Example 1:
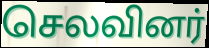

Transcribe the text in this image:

செலவினர்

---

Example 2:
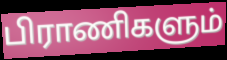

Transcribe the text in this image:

பிராணிகளும்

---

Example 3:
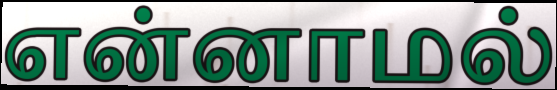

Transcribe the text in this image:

என்னாமல்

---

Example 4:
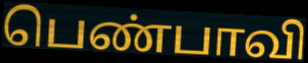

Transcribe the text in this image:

பெண்பாவி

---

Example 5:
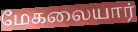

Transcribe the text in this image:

மேகலையார்